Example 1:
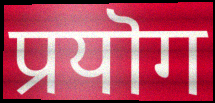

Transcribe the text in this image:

प्रयॊग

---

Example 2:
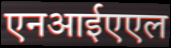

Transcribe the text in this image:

एनआईएएल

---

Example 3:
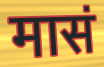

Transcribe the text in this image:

मासं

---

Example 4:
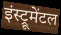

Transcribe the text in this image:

इंस्ट्रूमेंटल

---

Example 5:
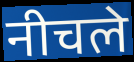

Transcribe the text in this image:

नीचले